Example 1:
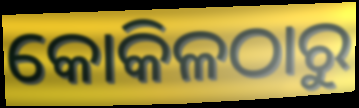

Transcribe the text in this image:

କୋକିଳଠାରୁ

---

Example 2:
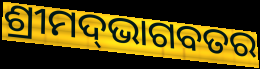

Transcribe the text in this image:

ଶ୍ରୀମଦ୍‌ଭାଗବତର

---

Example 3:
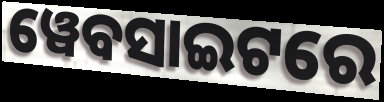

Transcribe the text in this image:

ୱେବସାଇଟରେ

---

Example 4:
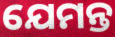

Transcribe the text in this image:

ଯେମନ୍ତ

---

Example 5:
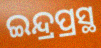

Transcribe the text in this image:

ଇନ୍ଦ୍ରପ୍ରସ୍ଥ